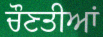
ਚੌਣਤੀਆਂ